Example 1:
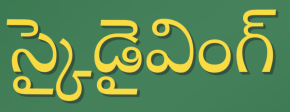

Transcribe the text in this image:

స్కైడైవింగ్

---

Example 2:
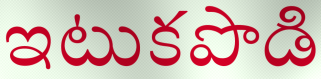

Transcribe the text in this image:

ఇటుకపొడి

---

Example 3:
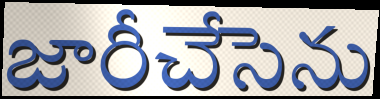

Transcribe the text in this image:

జారీచేసెను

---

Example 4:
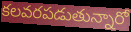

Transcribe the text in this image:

కలవరపడుతున్నారో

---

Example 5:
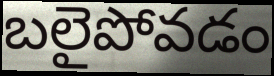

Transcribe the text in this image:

బలైపోవడం